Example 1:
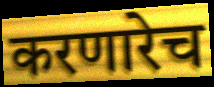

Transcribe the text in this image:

करणारेच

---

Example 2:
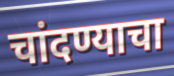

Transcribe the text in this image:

चांदण्याचा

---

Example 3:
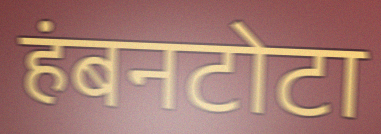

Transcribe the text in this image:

हंबनटोटा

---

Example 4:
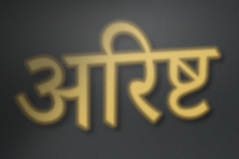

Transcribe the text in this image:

अरिष्ट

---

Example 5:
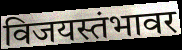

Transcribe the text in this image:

विजयस्तंभावर